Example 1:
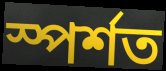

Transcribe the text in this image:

স্পৰ্শত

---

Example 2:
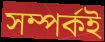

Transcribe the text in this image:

সম্পৰ্কই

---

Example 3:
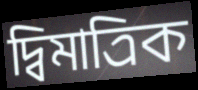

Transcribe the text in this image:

দ্বিমাত্ৰিক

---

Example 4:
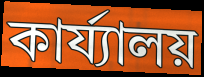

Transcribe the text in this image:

কাৰ্য্যালয়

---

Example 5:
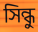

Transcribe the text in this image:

সিন্ধু